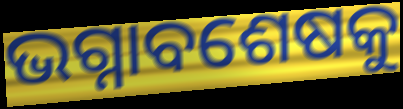
ଭଗ୍ନାବଶେଷକୁ